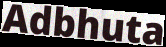
Adbhuta